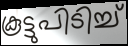
കൂട്ടുപിടിച്ച്